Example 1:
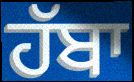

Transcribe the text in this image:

ਹੱਬਾ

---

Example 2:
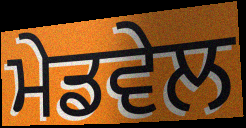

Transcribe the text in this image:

ਮੇਡਵੇਲ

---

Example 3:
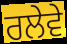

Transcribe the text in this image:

ਰਲੇਵੇ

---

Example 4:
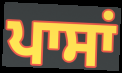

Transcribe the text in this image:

ਪਾਸਾਂ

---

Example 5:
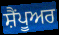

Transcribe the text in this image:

ਸ਼ੈਂਪੂਅਰ